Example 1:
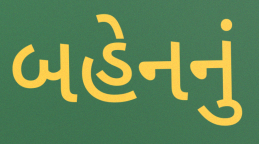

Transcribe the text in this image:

બહેનનું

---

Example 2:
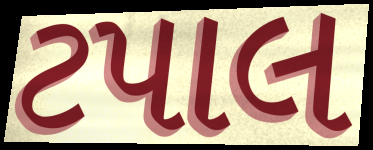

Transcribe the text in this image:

ટપાલ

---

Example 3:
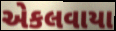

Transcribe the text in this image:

એકલવાયા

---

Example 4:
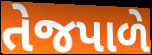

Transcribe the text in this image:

તેજપાળે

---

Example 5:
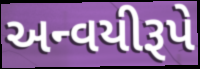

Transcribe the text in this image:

અન્વયીરૂપે